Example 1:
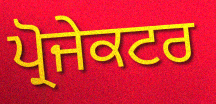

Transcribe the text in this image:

ਪ੍ਰੋਜੇਕਟਰ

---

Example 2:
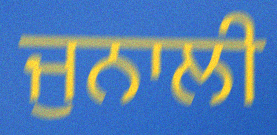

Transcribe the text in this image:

ਜੁਨਾਲੀ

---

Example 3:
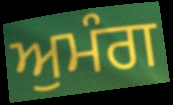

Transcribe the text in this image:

ਅੁਮੰਗ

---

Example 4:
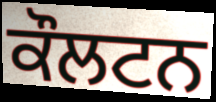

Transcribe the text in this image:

ਕੌਲਟਨ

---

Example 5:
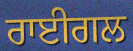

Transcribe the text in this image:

ਰਾਈਗਲ